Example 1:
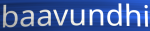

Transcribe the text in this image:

baavundhi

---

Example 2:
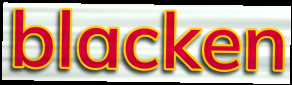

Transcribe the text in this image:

blacken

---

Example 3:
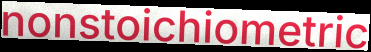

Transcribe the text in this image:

nonstoichiometric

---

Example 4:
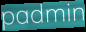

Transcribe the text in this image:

padmin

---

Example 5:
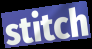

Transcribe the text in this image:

stitch